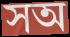
সঅ